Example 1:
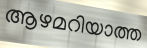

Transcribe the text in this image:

ആഴമറിയാത്ത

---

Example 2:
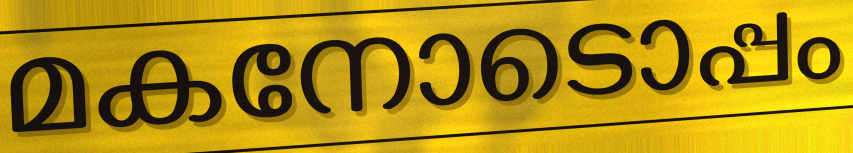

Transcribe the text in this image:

മകനോടൊപ്പം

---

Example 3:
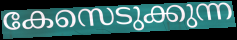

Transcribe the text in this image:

കേസെടുക്കുന്ന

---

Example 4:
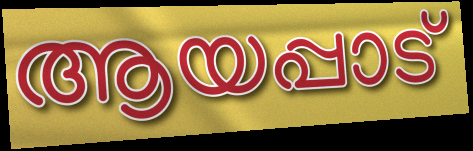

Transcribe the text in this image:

ആയപ്പാട്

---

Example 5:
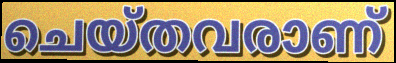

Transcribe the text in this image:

ചെയ്തവരാണ്